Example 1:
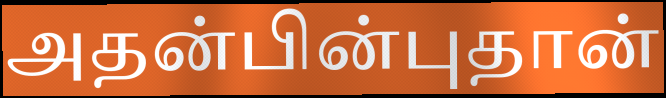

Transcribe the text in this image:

அதன்பின்புதான்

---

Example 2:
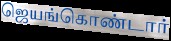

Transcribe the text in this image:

ஜெயங்கொண்டார்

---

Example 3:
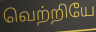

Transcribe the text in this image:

வெற்றியே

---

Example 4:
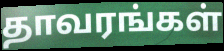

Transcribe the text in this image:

தாவரங்கள்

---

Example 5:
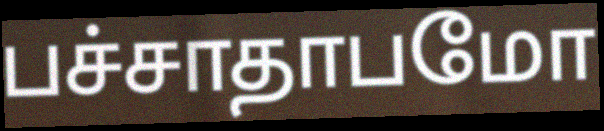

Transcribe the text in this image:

பச்சாதாபமோ